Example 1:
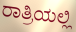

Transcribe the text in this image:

ರಾತ್ರಿಯಲ್ಲಿ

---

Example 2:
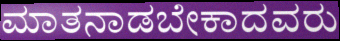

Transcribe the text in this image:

ಮಾತನಾಡಬೇಕಾದವರು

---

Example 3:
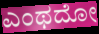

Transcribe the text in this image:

ಎಂಥದೋ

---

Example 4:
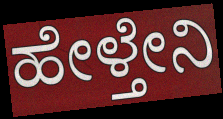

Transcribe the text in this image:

ಹೇಳ್ತೇನಿ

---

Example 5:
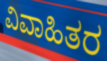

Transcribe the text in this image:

ವಿವಾಹಿತರ